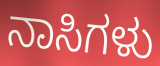
ನಾಸಿಗಳು